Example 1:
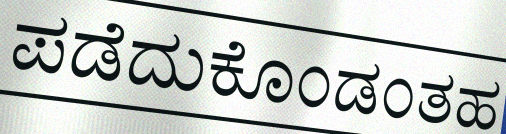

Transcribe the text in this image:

ಪಡೆದುಕೊಂಡಂತಹ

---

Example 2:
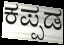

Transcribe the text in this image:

ಕಪ್ಪಡ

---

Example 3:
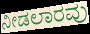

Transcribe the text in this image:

ನೀಡಲಾರವು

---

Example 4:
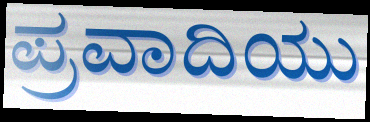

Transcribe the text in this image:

ಪ್ರವಾದಿಯು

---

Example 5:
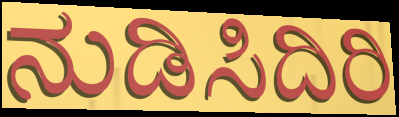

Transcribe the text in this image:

ನುಡಿಸಿದಿರಿ